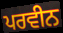
ਪਰਵੀਨ